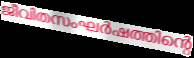
ജീവിതസംഘർഷത്തിന്റെ